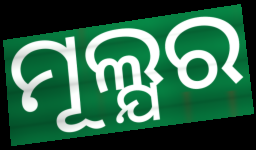
ମୂଲ୍ଯର